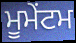
ਮੂਮੇਂਟਮ